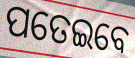
ପତେଇବେ